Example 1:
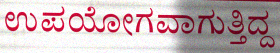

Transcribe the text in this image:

ಉಪಯೋಗವಾಗುತ್ತಿದ್ದ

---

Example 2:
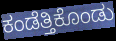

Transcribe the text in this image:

ಕಂಡೆತ್ತಿಕೊಂಡು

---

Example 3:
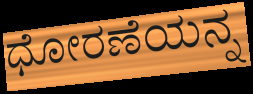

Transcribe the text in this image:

ಧೋರಣೆಯನ್ನ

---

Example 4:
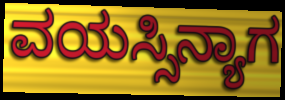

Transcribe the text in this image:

ವಯಸ್ಸಿನ್ಯಾಗ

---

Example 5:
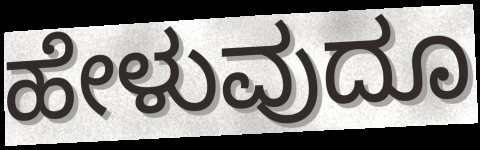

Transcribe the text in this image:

ಹೇಳುವುದೂ